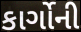
કાર્ગોની